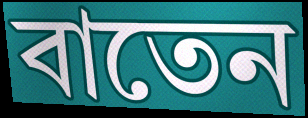
বাতেন